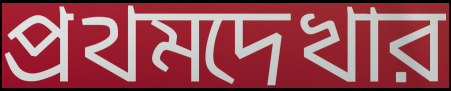
প্রথমদেখার